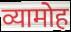
व्यामोह